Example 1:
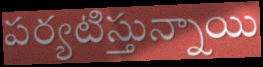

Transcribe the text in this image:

పర్యటిస్తున్నాయి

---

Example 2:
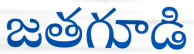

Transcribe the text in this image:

జతగూడి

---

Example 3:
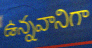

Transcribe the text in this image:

ఉన్నవానిగా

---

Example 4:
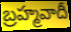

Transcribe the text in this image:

బ్రహ్మవాదీ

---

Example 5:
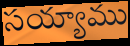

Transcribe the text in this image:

సయ్యాము